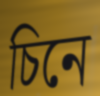
চিনে